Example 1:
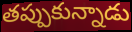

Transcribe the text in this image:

తప్పుకున్నాడు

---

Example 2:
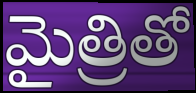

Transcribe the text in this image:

మైత్రితో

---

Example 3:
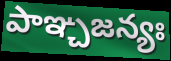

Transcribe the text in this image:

పాఞ్చజన్యః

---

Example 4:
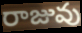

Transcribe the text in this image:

రాజువు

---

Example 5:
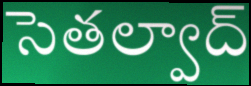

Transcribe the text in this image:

సెతల్వాద్